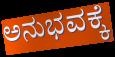
ಅನುಭವಕ್ಕೆ